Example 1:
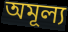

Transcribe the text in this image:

অমূল্য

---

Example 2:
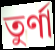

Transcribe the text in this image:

তুর্ণা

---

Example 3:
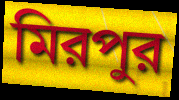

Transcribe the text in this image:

মিরপুর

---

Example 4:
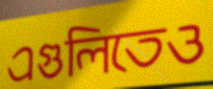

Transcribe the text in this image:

এগুলিতেও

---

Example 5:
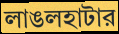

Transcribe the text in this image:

লাঙলহাটার